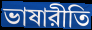
ভাষারীতি